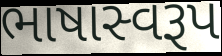
ભાષાસ્વરૂપ